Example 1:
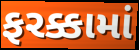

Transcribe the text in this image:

ફરક્કામાં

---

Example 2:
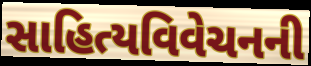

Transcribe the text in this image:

સાહિત્યવિવેચનની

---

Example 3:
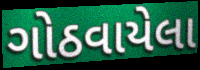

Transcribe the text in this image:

ગોઠવાયેલા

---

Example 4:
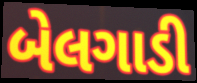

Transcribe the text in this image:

બેલગાડી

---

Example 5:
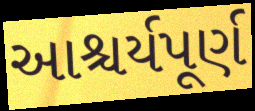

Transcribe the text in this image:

આશ્ચર્યપૂર્ણ